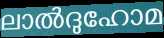
ലാൽദുഹോമ